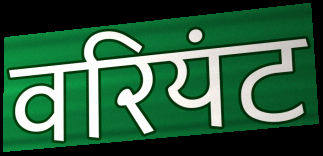
वरियंट